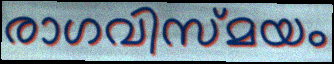
രാഗവിസ്മയം